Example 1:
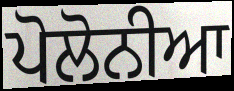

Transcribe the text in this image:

ਪੋਲੋਨੀਆ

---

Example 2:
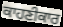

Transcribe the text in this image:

ਕਾਹਣੀਕਾਰ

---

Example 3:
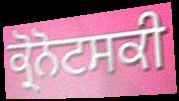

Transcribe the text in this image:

ਕ੍ਰੋਨੋਟਸਕੀ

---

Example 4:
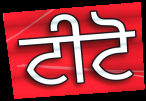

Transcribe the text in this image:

ਟੀਟੋ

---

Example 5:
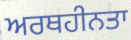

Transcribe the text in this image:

ਅਰਥਹੀਨਤਾ